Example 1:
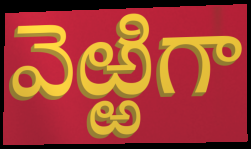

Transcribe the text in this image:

వెఱ్ఱిగా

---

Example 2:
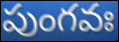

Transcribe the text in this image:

పుంగవః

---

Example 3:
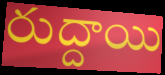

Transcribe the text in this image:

రుద్దాయి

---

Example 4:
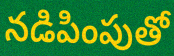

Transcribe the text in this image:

నడిపింపుతో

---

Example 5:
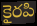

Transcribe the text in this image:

కైరపి